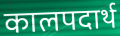
कालपदार्थ